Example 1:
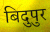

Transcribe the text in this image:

बिदुपुर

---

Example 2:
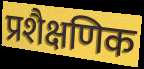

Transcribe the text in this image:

प्रशैक्षणिक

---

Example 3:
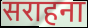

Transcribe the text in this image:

सराहना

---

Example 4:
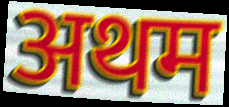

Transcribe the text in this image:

अथम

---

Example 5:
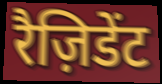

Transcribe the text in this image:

रैज़िडेंट